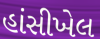
હાંસીખેલ